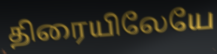
திரையிலேயே